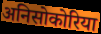
अनिसोकोरिया